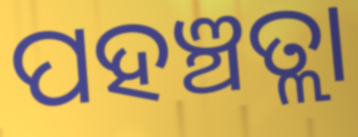
ପହଞ୍ଚତ୍ଲା